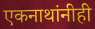
एकनाथांनीही